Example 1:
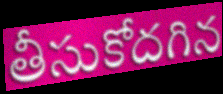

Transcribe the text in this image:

తీసుకోదగిన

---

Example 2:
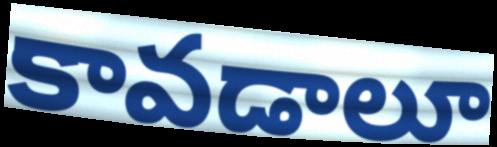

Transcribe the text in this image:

కావడాలూ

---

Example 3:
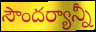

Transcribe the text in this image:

సౌందర్యాన్నీ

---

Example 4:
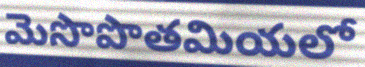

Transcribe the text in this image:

మెసొపొతమియలో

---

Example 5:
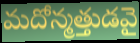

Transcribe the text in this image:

మదోన్మత్తుడవై